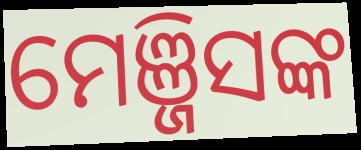
ମେଞ୍ଜିସଙ୍କ